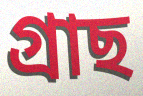
গ্ৰাছ